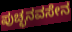
ಪುಚ್ಛನವಸೇನ